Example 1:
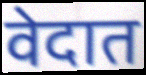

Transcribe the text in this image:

वेदात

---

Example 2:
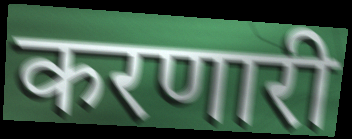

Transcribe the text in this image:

करणारी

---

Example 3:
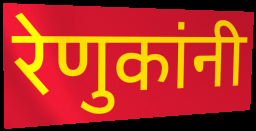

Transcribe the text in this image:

रेणुकांनी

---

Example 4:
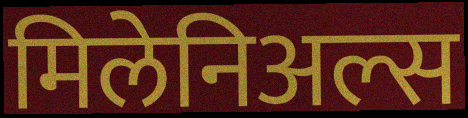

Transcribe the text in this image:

मिलेनिअल्स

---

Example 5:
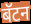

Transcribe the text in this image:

बॅटन